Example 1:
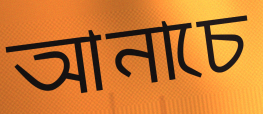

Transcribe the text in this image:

আনাচে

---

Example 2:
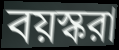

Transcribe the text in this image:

বয়স্করা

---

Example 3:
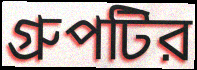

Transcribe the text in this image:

গ্রুপটির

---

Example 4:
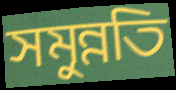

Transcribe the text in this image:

সমুন্নতি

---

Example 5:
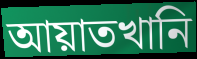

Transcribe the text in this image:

আয়াতখানি